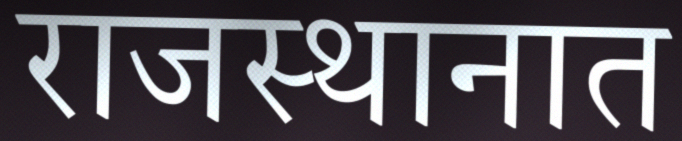
राजस्थानात